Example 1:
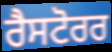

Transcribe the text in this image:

ਰੈਸਟੋਰਰ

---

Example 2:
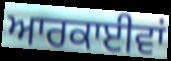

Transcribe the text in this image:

ਆਰਕਾਈਵਾਂ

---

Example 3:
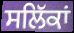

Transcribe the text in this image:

ਸਲਿੱਕਾਂ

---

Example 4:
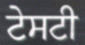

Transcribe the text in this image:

ਟੇਸਟੀ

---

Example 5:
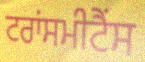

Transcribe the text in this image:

ਟਰਾਂਸਮੀਟੈਂਸ